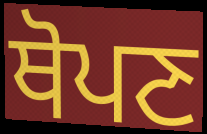
ਥੋਪਣ